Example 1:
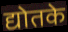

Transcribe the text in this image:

द्योतके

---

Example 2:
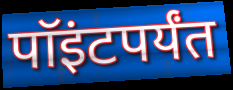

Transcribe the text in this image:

पॉइंटपर्यंत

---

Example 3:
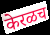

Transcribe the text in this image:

केरळच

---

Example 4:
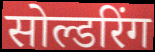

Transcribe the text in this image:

सोल्डरिंग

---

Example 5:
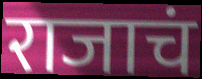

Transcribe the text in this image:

राजाचं